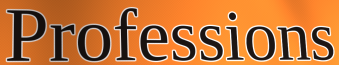
Professions